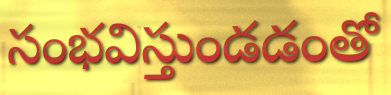
సంభవిస్తుండడంతో